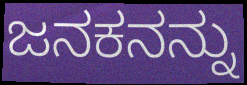
ಜನಕನನ್ನು